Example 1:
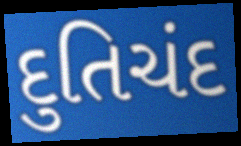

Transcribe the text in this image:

દુતિચંદ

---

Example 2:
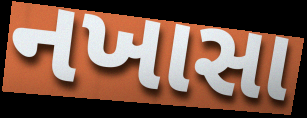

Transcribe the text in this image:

નખાસા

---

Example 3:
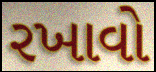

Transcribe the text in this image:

રખાવો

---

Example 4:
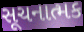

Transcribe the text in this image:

સૂચનાત્મક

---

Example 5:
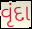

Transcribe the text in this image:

વૃંદા